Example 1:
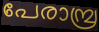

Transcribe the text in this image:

പേരാമ്പ്ര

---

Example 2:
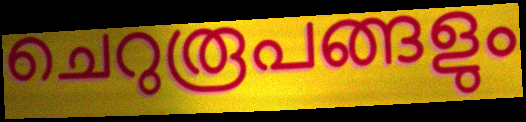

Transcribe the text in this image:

ചെറുരൂപങ്ങളും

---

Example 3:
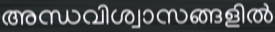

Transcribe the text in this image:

അന്ധവിശ്വാസങ്ങളിൽ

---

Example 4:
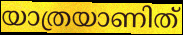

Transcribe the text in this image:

യാത്രയാണിത്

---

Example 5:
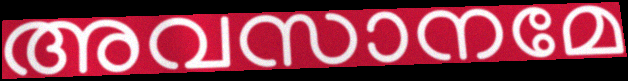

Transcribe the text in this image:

അവസാനമേ